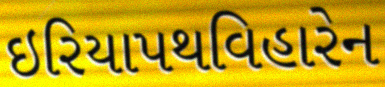
ઇરિયાપથવિહારેન